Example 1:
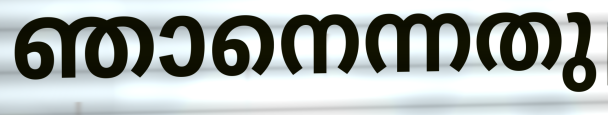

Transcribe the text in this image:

ഞാനെന്നതു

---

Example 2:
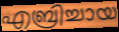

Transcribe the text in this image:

എബ്രിച്ചായ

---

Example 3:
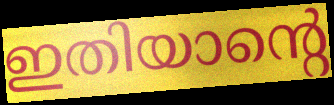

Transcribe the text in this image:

ഇതിയാന്റെ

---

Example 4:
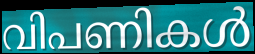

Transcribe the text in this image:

വിപണികൾ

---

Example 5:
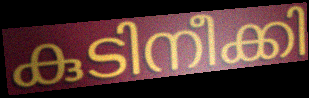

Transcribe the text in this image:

കുടിനീക്കി